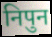
निपुन